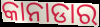
କାନାଡାର